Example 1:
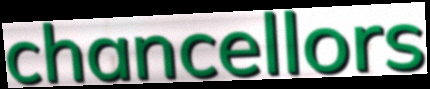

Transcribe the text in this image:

chancellors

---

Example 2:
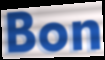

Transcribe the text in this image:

Bon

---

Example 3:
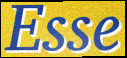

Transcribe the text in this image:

Esse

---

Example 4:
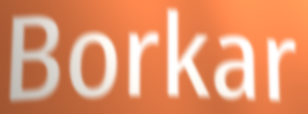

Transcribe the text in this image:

Borkar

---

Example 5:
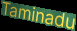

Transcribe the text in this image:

Taminadu